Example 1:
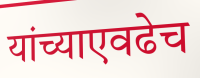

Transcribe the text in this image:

यांच्याएवढेच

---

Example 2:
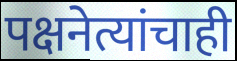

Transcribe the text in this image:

पक्षनेत्यांचाही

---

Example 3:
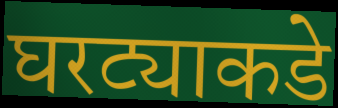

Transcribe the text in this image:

घरट्याकडे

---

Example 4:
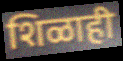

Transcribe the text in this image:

शिळाही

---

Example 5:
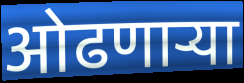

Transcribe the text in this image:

ओढणार्‍या